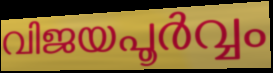
വിജയപൂർവ്വം